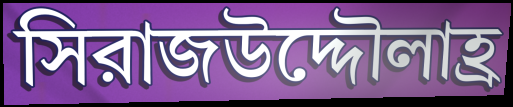
সিরাজউদ্দৌলাহ্র